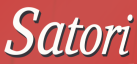
Satori